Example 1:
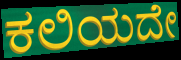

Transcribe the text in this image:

ಕಲಿಯದೇ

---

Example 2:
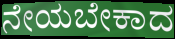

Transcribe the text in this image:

ನೇಯಬೇಕಾದ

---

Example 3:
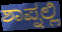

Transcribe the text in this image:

ಶಾಪ್ನಲ್ಲಿ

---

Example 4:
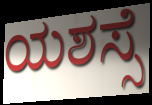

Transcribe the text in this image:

ಯಶಸ್ಸೆ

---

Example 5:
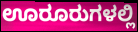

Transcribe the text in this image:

ಊರೂರುಗಳಲ್ಲಿ